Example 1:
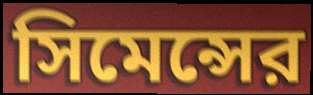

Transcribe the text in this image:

সিমেন্সের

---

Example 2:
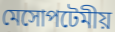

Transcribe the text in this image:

মেসোপটেমীয়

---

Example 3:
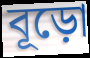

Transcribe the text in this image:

বূড়ো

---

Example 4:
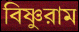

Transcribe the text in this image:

বিষ্ণুরাম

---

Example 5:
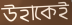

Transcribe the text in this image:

উহাকেই